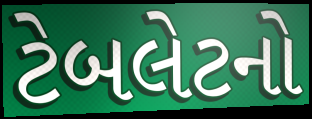
ટેબલેટનો